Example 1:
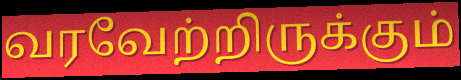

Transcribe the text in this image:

வரவேற்றிருக்கும்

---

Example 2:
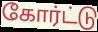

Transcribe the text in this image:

கோர்ட்டு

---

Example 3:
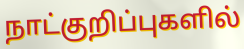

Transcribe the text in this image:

நாட்குறிப்புகளில்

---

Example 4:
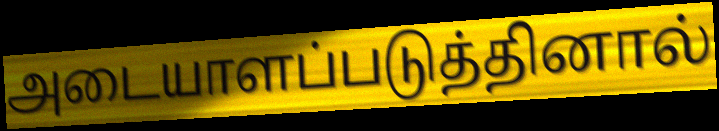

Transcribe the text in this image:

அடையாளப்படுத்தினால்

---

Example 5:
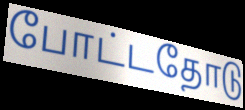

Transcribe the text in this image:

போட்டதோடு